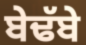
ਬੇਢੱਬੇ